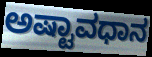
ಅಷ್ಟಾವಧಾನ